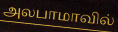
அலபாமாவில்